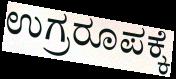
ಉಗ್ರರೂಪಕ್ಕೆ